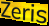
Zeris